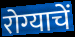
रोग्याचें